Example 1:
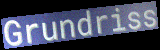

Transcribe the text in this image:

Grundriss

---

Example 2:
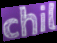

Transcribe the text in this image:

chil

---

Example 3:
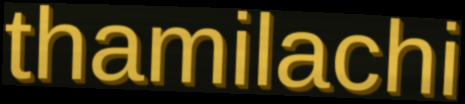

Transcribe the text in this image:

thamilachi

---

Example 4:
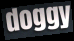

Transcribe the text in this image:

doggy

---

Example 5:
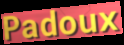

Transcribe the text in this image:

Padoux